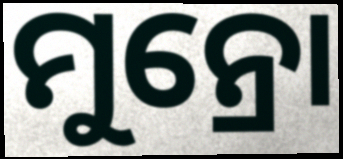
ମୁନ୍ରୋ